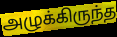
அழுக்கிருந்த